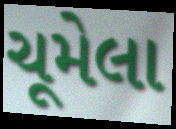
ચૂમેલા